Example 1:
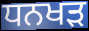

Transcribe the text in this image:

ਧਨਖੜ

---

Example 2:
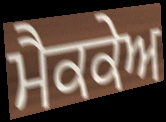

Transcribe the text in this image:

ਮੈਕਕੇਅ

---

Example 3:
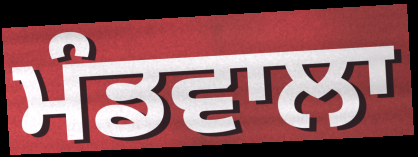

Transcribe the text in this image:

ਮੰਡਵਾਲਾ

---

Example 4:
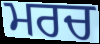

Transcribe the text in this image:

ਮਰਚ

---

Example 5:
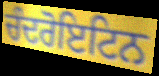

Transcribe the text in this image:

ਚੰਦਰੋਇਟਿਨ